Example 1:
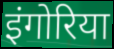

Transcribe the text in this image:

इंगोरिया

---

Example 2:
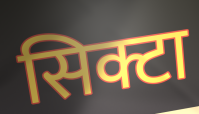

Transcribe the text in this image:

सिक्टा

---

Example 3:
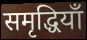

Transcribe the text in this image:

समृद्धियाँ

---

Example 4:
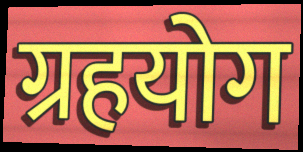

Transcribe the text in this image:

ग्रहयोग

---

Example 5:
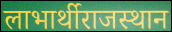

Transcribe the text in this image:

लाभार्थीराजस्थान